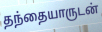
தந்தையாருடன்